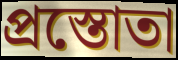
প্রস্তোতা